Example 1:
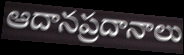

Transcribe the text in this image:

ఆదానప్రదానాలు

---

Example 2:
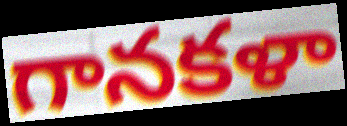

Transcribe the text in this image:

గానకళా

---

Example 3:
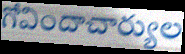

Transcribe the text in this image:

గోవిందాచార్యుల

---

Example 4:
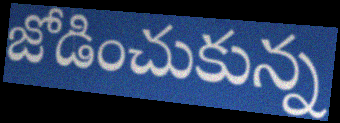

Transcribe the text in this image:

జోడించుకున్న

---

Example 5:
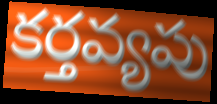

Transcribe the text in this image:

కర్తవ్యపు